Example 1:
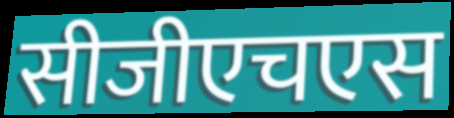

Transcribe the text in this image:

सीजीएचएस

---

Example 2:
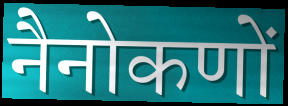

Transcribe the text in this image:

नैनोकणों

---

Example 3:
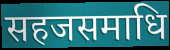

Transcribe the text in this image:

सहजसमाधि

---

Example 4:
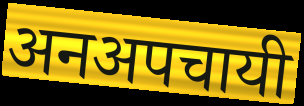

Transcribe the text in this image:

अनअपचायी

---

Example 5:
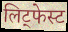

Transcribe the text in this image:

लिट्फेस्ट